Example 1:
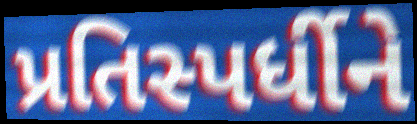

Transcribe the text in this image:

પ્રતિસ્પર્ધીને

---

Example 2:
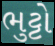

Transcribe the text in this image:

ભુટ્ટો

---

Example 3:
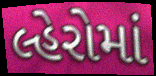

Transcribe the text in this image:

લ્હેરોમાં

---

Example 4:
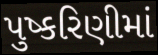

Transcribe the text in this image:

પુષ્કરિણીમાં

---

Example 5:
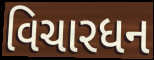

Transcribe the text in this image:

વિચારધન